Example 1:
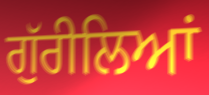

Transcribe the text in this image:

ਗੁੱਰੀਲਿਆਂ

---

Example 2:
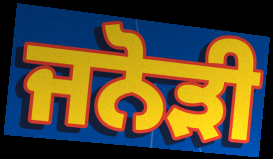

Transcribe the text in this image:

ਜਨੋੜੀ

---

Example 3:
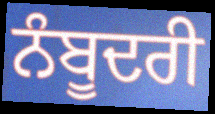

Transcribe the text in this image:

ਨੰਬੂਦਰੀ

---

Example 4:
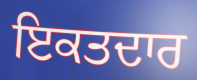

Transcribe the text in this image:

ਇਕਤਦਾਰ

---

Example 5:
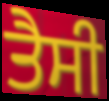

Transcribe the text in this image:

ਤੈਸੀ